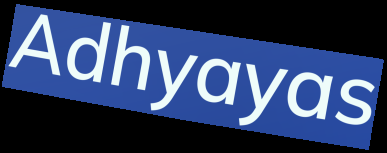
Adhyayas